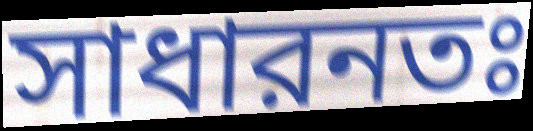
সাধারনতঃ